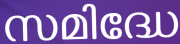
സമിദ്ധേ